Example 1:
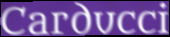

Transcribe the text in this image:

Carducci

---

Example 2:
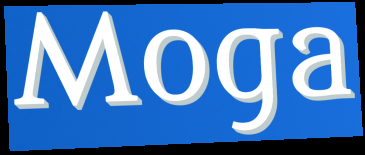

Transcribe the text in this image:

Moga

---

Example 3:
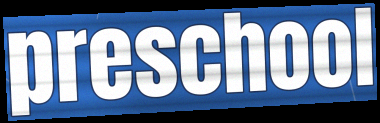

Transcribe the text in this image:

preschool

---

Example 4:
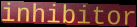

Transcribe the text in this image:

inhibitor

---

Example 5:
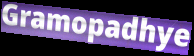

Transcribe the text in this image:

Gramopadhye